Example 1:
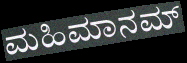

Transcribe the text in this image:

ಮಹಿಮಾನಮ್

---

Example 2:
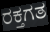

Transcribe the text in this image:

ರಕ್ತಗತ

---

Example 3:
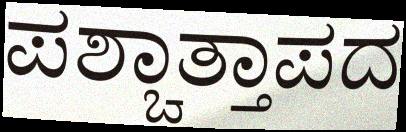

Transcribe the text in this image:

ಪಶ್ಚಾತ್ತಾಪದ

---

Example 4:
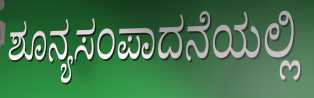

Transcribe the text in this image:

ಶೂನ್ಯಸಂಪಾದನೆಯಲ್ಲಿ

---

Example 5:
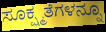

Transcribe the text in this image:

ಸೂಕ್ಷ್ಮತೆಗಳನ್ನೂ